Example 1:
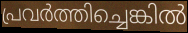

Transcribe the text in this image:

പ്രവർത്തിച്ചെങ്കിൽ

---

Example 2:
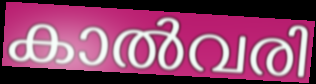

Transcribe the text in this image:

കാൽവരി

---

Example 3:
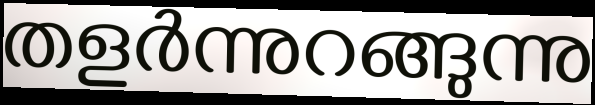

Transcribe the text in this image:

തളർന്നുറങ്ങുന്നു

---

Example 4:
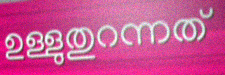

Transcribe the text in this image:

ഉള്ളുതുറന്നത്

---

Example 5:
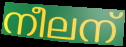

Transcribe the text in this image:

നീലന്